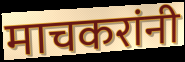
माचकरांनी